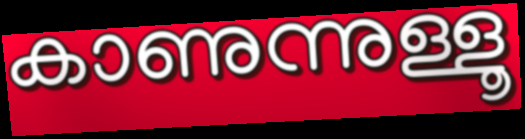
കാണുന്നുള്ളൂ